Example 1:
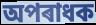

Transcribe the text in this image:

অপৰাধক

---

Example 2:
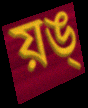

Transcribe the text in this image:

য়ঙ্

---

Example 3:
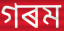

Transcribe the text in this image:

গৰম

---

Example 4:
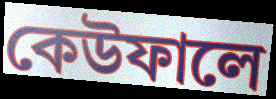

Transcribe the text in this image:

কেউফালে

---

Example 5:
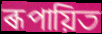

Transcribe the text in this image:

ৰূপায়িত